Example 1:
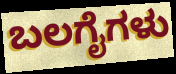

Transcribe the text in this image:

ಬಲಗೈಗಳು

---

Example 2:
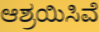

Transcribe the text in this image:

ಆಶ್ರಯಿಸಿವೆ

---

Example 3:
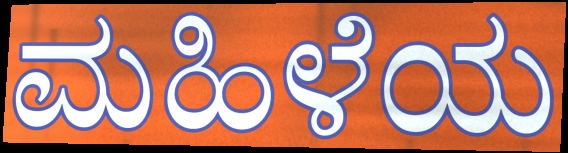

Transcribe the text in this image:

ಮಹಿಳೆಯ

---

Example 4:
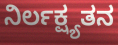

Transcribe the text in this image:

ನಿರ್ಲಕ್ಷ್ಯತನ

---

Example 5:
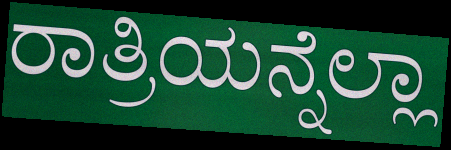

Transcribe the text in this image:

ರಾತ್ರಿಯನ್ನೆಲ್ಲಾ